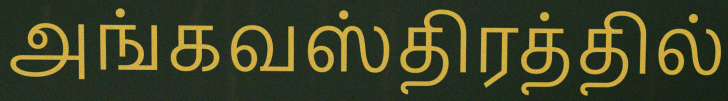
அங்கவஸ்திரத்தில்